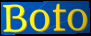
Boto